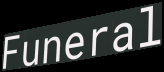
Funeral